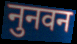
नुनवन